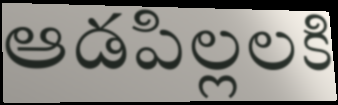
ఆడపిల్లలకి